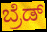
ಬ್ರೆಡ್